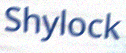
Shylock